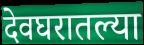
देवघरातल्या